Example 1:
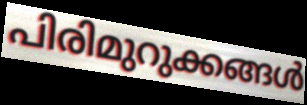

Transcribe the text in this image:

പിരിമുറുക്കങ്ങൾ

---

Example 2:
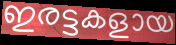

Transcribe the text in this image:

ഇരട്ടകളായ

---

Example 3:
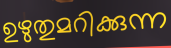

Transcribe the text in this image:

ഉഴുതുമറിക്കുന്ന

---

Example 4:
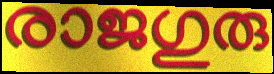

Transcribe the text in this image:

രാജഗുരു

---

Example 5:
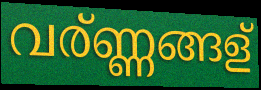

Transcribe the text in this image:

വര്ണ്ണങ്ങള്